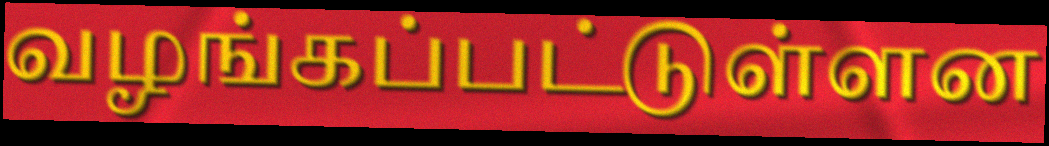
வழங்கப்பட்டுள்ளன